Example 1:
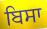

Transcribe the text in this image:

ਬਿਸਾ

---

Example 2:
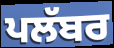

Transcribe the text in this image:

ਪਲੱਬਰ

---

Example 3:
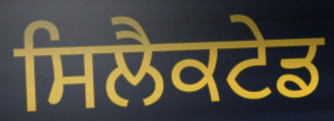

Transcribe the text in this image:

ਸਿਲੈਕਟੇਡ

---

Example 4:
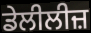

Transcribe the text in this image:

ਡੇਲੀਲੀਜ਼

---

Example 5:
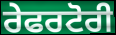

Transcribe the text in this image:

ਰੇਫਰਟੋਰੀ